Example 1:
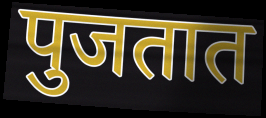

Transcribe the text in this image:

पुजतात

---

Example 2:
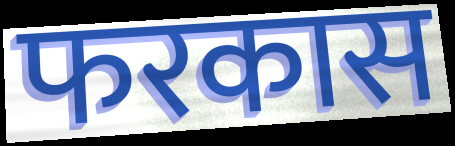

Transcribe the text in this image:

फरकास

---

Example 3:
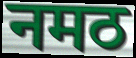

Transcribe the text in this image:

नमठ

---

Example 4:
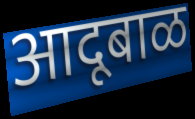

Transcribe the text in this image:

आदूबाळ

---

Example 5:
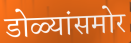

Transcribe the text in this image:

डोळ्यांसमोर